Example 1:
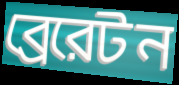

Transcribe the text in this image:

ব্রেরেটন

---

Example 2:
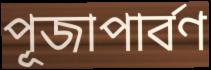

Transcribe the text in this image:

পূজাপার্বণ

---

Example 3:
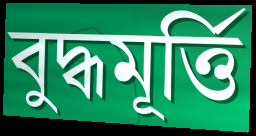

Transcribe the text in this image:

বুদ্ধমূর্ত্তি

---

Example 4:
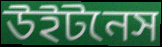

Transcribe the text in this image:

উইটনেস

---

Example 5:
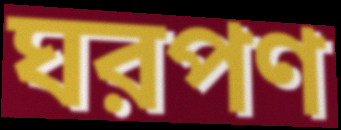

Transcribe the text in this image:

ঘরপণ